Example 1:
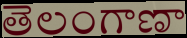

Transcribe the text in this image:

తెలంగాణా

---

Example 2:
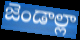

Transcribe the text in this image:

జెండాల్లా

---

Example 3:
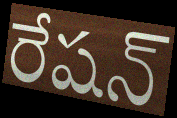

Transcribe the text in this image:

రేషన్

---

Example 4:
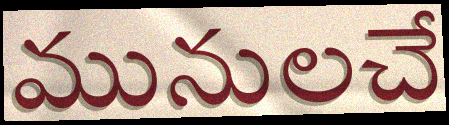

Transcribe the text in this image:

మునులచే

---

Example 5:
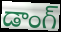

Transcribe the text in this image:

డాంగ్